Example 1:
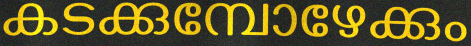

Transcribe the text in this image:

കടക്കുമ്പോഴേക്കും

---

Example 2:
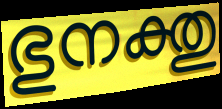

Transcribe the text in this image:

ഭുനക്തു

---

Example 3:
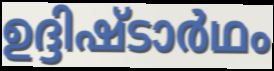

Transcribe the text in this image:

ഉദ്ദിഷ്ടാർഥം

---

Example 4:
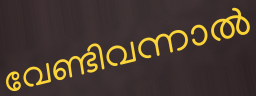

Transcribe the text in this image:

വേണ്ടിവന്നാൽ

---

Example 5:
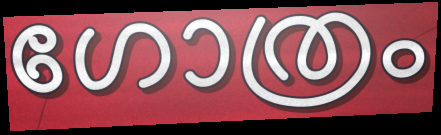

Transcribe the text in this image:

ഗോത്രം